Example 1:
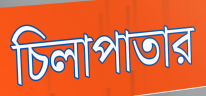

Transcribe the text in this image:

চিলাপাতার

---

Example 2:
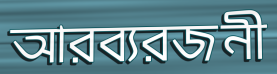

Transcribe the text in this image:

আরব্যরজনী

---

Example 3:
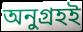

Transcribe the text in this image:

অনুগ্রহই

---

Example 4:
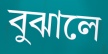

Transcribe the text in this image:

বুঝালে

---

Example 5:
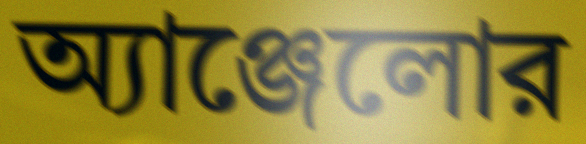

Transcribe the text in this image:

অ্যাঞ্জেলোর